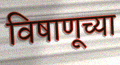
विषाणूच्या